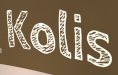
Kolis